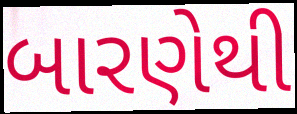
બારણેથી